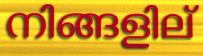
നിങ്ങളില്